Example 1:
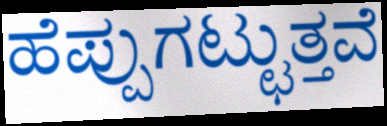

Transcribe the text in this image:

ಹೆಪ್ಪುಗಟ್ಟುತ್ತವೆ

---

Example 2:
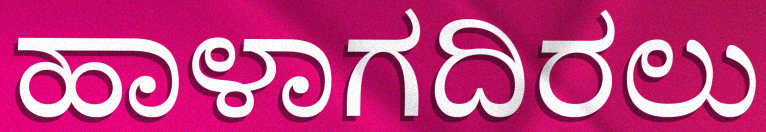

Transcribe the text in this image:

ಹಾಳಾಗದಿರಲು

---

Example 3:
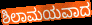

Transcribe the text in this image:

ಶಿಲಾಮಯವಾದ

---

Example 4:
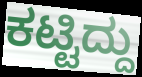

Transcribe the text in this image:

ಕಟ್ಟಿದ್ದು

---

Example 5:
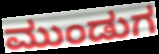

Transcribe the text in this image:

ಮುಂಡುಗ